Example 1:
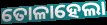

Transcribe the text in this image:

ତୋଳାହେଲା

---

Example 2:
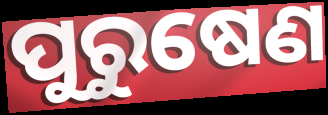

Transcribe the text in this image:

ପୁରୁଷେଣ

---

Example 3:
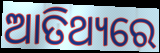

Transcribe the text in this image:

ଆତିଥ୍ୟରେ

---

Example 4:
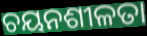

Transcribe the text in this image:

ଚୟନଶୀଳତା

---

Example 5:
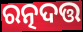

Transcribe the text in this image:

ରତ୍ନଦତ୍ତ